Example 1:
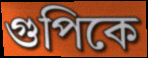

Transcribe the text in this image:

গুপিকে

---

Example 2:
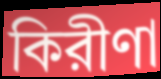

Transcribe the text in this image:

কিরীণা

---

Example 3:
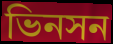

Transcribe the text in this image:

ভিনসন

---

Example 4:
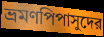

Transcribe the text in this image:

ভ্রমণপিপাসুদের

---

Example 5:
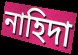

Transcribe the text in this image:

নাহিদা